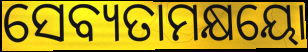
ସେବ୍ୟତାମକ୍ଷୟୋ